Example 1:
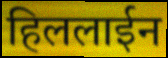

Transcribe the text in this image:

हिललाईन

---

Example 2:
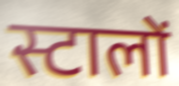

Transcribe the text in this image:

स्टालों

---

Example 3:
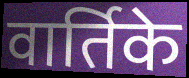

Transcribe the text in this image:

वार्तिके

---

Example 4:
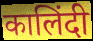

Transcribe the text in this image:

कालिंदी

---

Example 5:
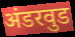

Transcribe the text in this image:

अंडरवुड